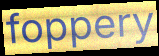
foppery